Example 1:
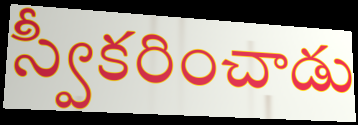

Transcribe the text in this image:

స్వీకరించాడు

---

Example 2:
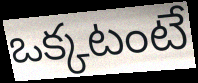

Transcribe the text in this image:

ఒక్కటంటే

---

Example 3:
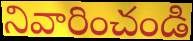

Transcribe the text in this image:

నివారించండి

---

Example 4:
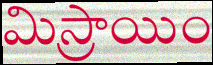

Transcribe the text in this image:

మిస్రాయిం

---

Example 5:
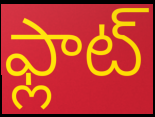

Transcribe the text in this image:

ఫ్లాట్